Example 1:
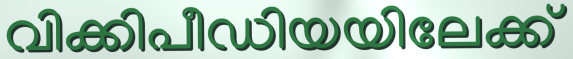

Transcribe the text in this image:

വിക്കിപീഡിയയിലേക്ക്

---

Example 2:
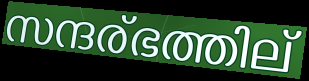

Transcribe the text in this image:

സന്ദര്ഭത്തില്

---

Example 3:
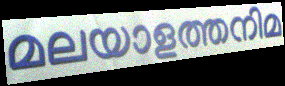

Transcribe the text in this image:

മലയാളത്തനിമ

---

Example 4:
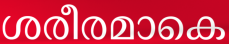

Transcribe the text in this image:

ശരീരമാകെ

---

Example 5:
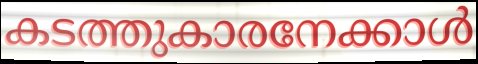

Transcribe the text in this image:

കടത്തുകാരനേക്കാൾ